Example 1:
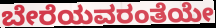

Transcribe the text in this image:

ಬೇರೆಯವರಂತೆಯೇ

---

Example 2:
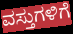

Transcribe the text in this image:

ವಸ್ತುಗಳಿಗೆ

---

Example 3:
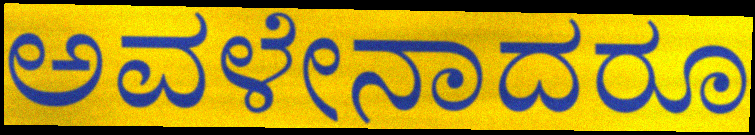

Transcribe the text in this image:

ಅವಳೇನಾದರೂ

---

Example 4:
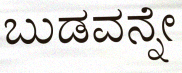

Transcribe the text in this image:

ಬುಡವನ್ನೇ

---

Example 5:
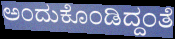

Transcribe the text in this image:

ಅಂದುಕೊಂಡಿದ್ದಂತೆ